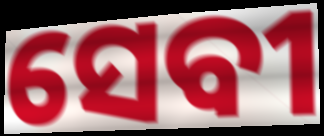
ସେବୀ